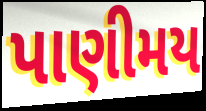
પાણીમય